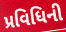
પ્રવિધિની